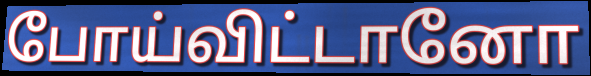
போய்விட்டானோ